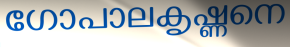
ഗോപാലകൃഷ്ണനെ